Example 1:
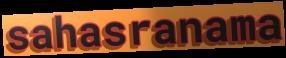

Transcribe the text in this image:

sahasranama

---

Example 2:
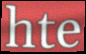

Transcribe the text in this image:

hte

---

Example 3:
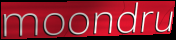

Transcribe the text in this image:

moondru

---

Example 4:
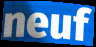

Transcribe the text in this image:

neuf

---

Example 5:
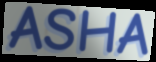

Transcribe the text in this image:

ASHA